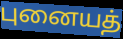
புனையத்